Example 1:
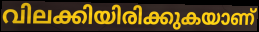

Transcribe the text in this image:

വിലക്കിയിരിക്കുകയാണ്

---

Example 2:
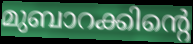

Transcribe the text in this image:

മുബാറക്കിന്റെ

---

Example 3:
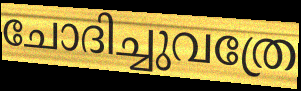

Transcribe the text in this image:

ചോദിച്ചുവത്രേ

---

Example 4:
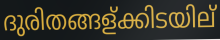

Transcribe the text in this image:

ദുരിതങ്ങള്ക്കിടയില്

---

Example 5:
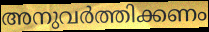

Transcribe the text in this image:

അനുവർത്തിക്കണം